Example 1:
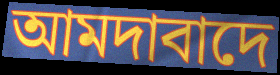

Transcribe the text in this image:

আমদাবাদে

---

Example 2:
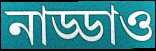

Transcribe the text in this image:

নাড্ডাও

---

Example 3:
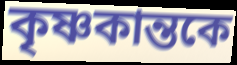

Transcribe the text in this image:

কৃষ্ণকান্তকে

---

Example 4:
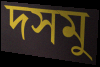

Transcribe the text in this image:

দসমু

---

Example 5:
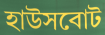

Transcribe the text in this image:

হাউসবোট